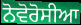
ਨੋਵੋਰੋਸੀਆ